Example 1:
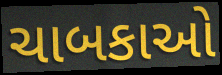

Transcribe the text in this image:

ચાબકાઓ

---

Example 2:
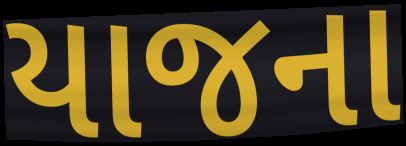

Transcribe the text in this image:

યાજના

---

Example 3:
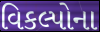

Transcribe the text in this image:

વિકલ્પોના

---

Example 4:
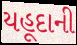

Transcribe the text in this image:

યહૂદાની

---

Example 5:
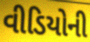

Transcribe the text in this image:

વીડિયોની